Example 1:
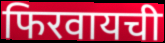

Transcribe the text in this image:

फिरवायची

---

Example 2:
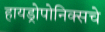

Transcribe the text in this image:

हायड्रोपोनिक्सचे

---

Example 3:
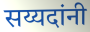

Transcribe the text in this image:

सय्यदांनी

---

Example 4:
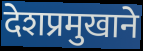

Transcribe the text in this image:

देशप्रमुखाने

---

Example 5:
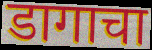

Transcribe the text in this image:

डागाचा